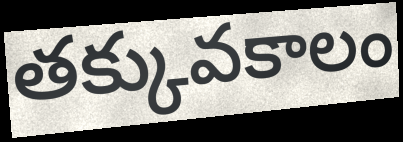
తక్కువకాలం